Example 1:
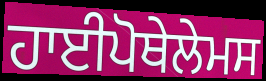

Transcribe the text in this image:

ਹਾਈਪੋਥੇਲੇਮਸ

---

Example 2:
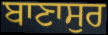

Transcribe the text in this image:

ਬਾਣਾਸੁਰ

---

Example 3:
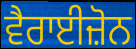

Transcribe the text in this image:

ਵੈਰਾਈਜ਼ੋਨ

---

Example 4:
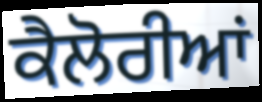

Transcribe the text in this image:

ਕੈਲੋਰੀਆਂ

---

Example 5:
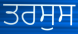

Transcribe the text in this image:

ਤਰਸੁਸ